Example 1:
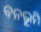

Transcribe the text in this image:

ବନଭୂମି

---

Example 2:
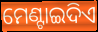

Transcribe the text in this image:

ମେଣ୍ଟାଇଦିଏ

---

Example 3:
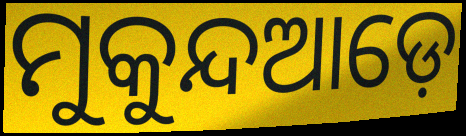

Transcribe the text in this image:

ମୁକୁନ୍ଦଆଡ଼େ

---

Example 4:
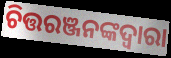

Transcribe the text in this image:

ଚିତ୍ତରଞ୍ଜନଙ୍କଦ୍ଵାରା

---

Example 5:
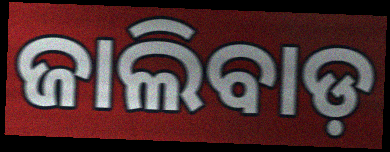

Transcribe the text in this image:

ଜାଲିବାଡ଼